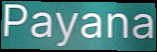
Payana